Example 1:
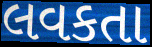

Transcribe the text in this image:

લવકતા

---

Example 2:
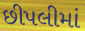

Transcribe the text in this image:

છીપલીમાં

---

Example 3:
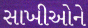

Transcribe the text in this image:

સાખીઓને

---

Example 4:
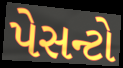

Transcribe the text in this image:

પેસન્ટો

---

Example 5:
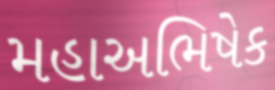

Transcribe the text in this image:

મહાઅભિષેક